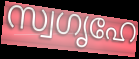
സ്വഗൃഹേ